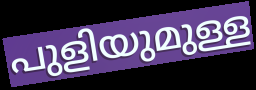
പുളിയുമുള്ള